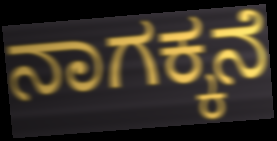
ನಾಗಕ್ಕನೆ